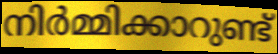
നിർമ്മിക്കാറുണ്ട്